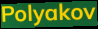
Polyakov